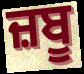
ਜ਼ਬੂ